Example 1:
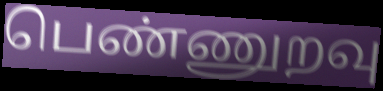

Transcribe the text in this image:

பெண்ணுறவு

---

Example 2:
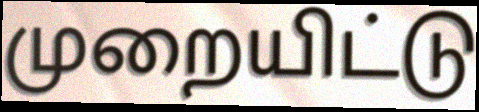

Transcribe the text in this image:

முறையிட்டு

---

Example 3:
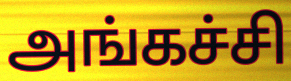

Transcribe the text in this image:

அங்கச்சி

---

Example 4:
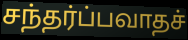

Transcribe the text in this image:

சந்தர்ப்பவாதச்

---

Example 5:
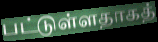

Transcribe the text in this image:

பட்டுள்ளதாகத்